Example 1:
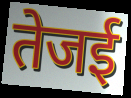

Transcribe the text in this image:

तेजई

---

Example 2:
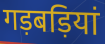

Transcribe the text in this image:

गड़बड़ियां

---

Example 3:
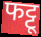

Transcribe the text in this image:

फट्टू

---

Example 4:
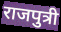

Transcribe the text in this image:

राजपुत्री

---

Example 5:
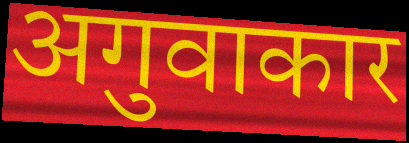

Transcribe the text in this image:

अगुवाकार